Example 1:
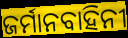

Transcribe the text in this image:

ଜର୍ମାନବାହିନୀ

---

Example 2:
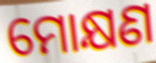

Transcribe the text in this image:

ମୋକ୍ଷଣ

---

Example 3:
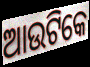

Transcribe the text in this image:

ଆଉଟିକେ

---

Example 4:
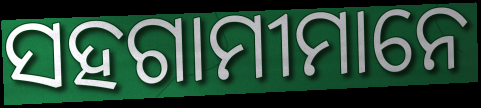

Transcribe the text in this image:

ସହଗାମୀମାନେ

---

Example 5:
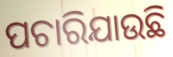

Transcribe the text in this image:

ପଚାରିଯାଉଛି